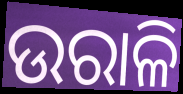
ଉରାଳି